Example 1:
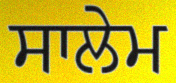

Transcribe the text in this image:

ਸਾਲੇਮ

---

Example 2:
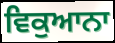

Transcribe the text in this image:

ਵਿਕੁਆਨਾ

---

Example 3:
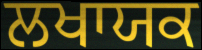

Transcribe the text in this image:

ਲਖਾਯਕ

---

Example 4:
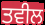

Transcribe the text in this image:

ਤਵੀਲ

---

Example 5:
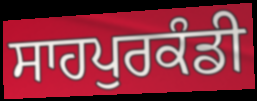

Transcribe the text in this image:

ਸਾਹਪੁਰਕੰਡੀ